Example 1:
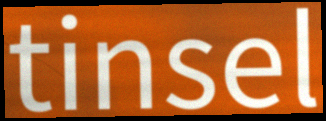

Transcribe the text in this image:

tinsel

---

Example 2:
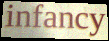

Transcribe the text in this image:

infancy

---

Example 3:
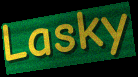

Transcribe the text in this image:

Lasky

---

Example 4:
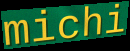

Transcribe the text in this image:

michi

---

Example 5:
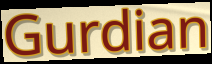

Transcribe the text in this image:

Gurdian